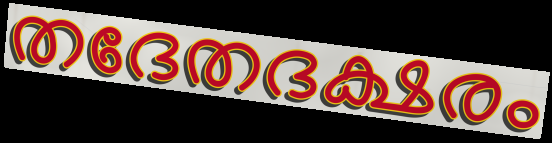
തദേതദക്ഷരം